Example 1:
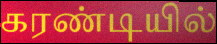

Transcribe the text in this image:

கரண்டியில்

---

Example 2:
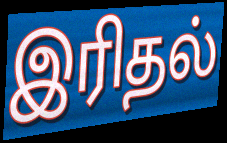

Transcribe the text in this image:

இரிதல்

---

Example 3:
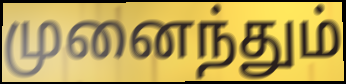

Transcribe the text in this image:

முனைந்தும்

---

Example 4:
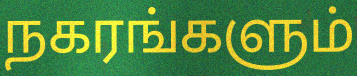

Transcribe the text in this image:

நகரங்களும்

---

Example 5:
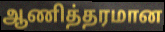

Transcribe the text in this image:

ஆணித்தரமான